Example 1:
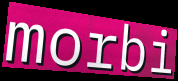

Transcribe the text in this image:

morbi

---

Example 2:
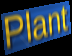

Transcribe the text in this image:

Plant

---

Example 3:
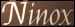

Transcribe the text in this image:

Ninox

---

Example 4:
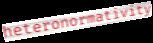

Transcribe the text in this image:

heteronormativity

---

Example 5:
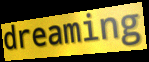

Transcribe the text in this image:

dreaming